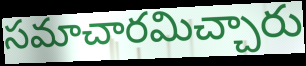
సమాచారమిచ్చారు